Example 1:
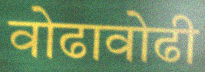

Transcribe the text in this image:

वोढावोढी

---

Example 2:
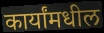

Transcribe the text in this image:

कार्यांमधील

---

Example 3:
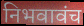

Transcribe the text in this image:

निभवावंच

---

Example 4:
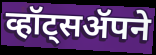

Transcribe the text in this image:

व्हॉट्सॲपने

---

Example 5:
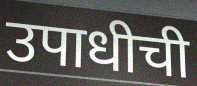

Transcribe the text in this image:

उपाधीची